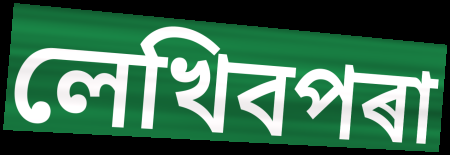
লেখিবপৰা